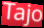
Tajo